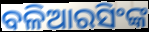
ବଳିଆରସିଂଙ୍କ